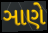
ઞાણે